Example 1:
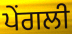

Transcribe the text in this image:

ਪੇਂਗਲੀ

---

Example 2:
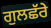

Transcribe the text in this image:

ਗੁਲਛੱਰੇ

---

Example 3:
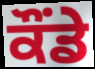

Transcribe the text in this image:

ਕੌਂਡੇ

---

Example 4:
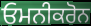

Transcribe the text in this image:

ਓਮਨੀਕਰੋਨ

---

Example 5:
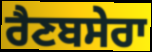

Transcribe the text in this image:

ਰੈਣਬਸੇਰਾ